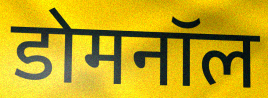
डोमनॉल